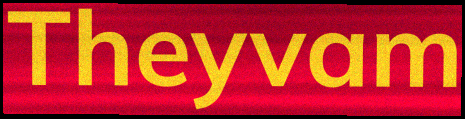
Theyvam